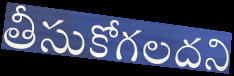
తీసుకోగలదని